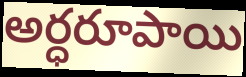
అర్ధరూపాయి